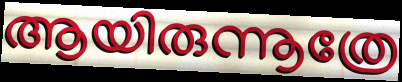
ആയിരുന്നൂത്രേ